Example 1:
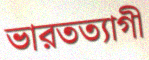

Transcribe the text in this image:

ভারতত্যাগী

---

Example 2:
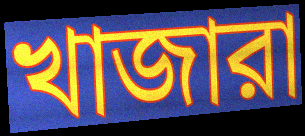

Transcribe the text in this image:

খাজারা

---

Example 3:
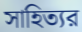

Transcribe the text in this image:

সাহিত্যর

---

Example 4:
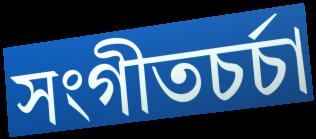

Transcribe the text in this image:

সংগীতচর্চা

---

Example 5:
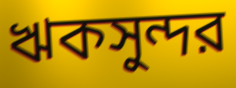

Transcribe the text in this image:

ঋকসুন্দর